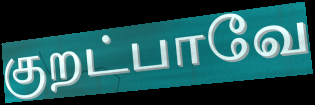
குறட்பாவே